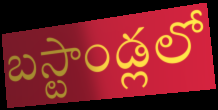
బస్టాండ్లలో